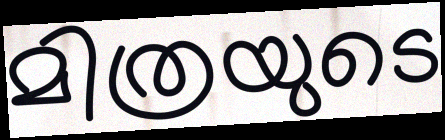
മിത്രയുടെ